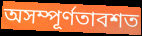
অসম্পূর্ণতাবশত